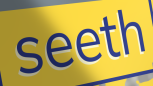
seeth